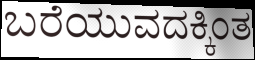
ಬರೆಯುವದಕ್ಕಿಂತ